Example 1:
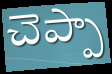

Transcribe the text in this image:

చెప్పా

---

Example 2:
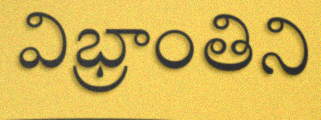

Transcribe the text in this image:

విభ్రాంతిని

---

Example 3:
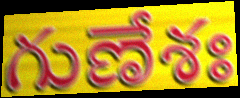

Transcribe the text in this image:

గుణేశః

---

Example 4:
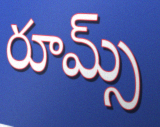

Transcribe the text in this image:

రూమ్స్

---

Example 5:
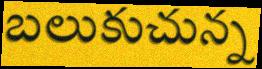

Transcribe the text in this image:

బలుకుచున్న